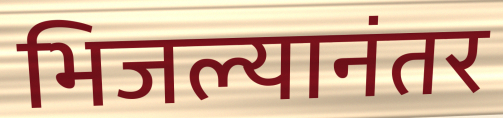
भिजल्यानंतर